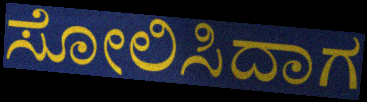
ಸೋಲಿಸಿದಾಗ